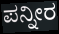
ಪನ್ನೀರ